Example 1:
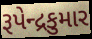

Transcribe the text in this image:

રૂપેન્દ્રકુમાર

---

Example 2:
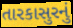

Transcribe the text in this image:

તારકાસુરનું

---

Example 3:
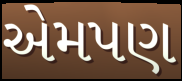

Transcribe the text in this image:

એમપણ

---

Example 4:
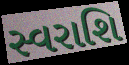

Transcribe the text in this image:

સ્વરાશિ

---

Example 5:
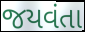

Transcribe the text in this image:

જયવંતા